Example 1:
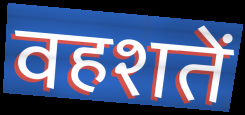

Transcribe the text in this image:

वहशतें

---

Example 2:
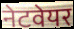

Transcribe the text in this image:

नेटवेयर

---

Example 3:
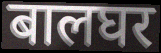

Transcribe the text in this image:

बालघर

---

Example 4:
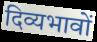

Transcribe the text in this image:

दिव्यभावों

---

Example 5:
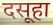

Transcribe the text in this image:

दसूहा